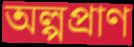
অল্পপ্রাণ